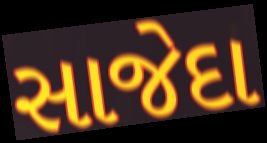
સાજેદા